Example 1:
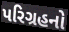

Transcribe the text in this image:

પરિગ્રહનો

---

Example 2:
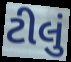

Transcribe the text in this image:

ટીલું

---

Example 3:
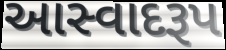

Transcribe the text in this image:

આસ્વાદરૂપ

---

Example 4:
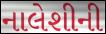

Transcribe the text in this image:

નાલેશીની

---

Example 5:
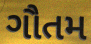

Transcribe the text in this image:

ગૌતમ